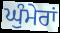
ਘੁੰਮੇਰਾਂ